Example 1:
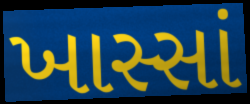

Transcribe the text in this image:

ખાસ્સાં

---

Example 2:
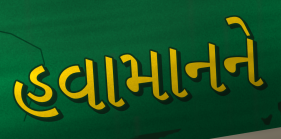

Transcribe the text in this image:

હવામાનને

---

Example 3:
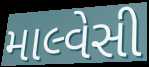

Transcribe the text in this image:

માલ્વેસી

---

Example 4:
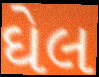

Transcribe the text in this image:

ઘેલ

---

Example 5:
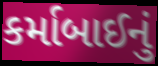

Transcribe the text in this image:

કર્માબાઈનું